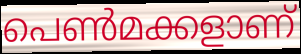
പെൺമക്കളാണ്